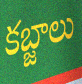
కబ్జాలు